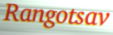
Rangotsav